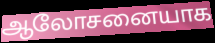
ஆலோசனையாக